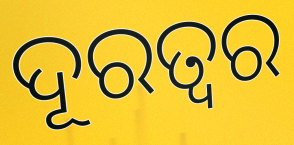
ଦୂରତ୍ଵର